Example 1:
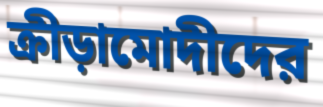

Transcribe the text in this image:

ক্রীড়ামোদীদের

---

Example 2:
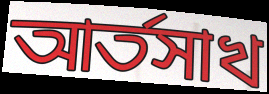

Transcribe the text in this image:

আর্তসাখ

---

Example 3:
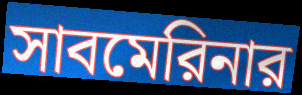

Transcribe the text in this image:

সাবমেরিনার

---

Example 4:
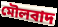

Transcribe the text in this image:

মৌলবাদ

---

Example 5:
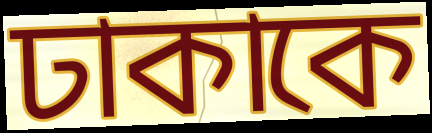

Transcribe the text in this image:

ঢাকাকে